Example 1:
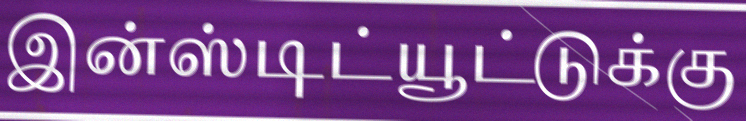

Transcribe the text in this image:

இன்ஸ்டிட்யூட்டுக்கு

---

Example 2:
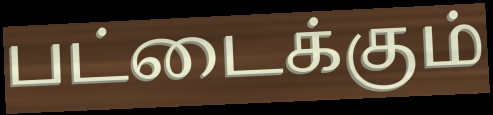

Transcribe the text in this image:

பட்டைக்கும்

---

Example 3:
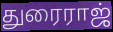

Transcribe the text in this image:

துரைராஜ்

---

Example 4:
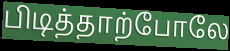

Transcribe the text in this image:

பிடித்தாற்போலே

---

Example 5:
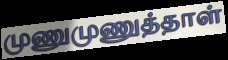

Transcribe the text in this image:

முணுமுணுத்தாள்